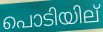
പൊടിയില്